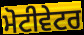
ਮੋਟੀਵੇਟਰ